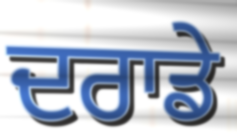
ਦਰਾਡੇ